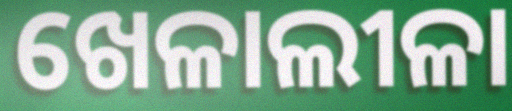
ଖେଳାଲୀଳା